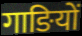
गाङियों